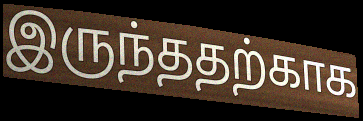
இருந்ததற்காக